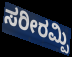
ಸರೀರಮ್ಪಿ